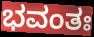
ಭವಂತಃ